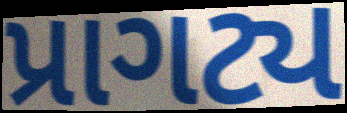
પ્રાગટ્ય